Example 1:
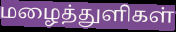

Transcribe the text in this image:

மழைத்துளிகள்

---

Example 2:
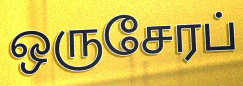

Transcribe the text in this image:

ஒருசேரப்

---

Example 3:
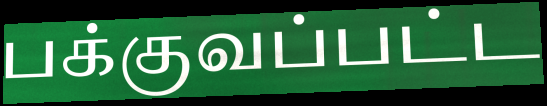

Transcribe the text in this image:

பக்குவப்பட்ட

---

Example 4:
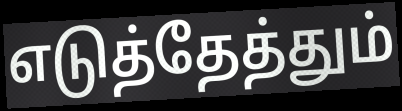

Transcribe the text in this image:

எடுத்தேத்தும்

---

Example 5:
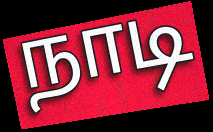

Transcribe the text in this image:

நாடி